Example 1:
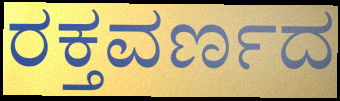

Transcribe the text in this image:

ರಕ್ತವರ್ಣದ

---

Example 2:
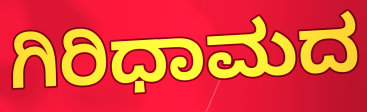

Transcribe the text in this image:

ಗಿರಿಧಾಮದ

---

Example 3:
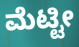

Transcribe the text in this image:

ಮೆಟ್ಟೀ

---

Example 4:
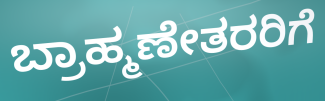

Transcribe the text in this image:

ಬ್ರಾಹ್ಮಣೇತರರಿಗೆ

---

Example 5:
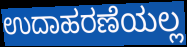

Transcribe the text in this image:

ಉದಾಹರಣೆಯಲ್ಲ